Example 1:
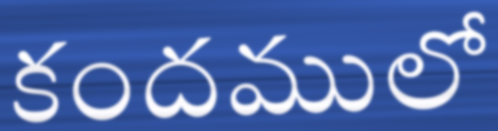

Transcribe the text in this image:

కందములో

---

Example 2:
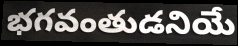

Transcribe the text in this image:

భగవంతుడనియే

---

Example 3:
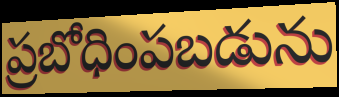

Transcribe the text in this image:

ప్రబోధింపబడును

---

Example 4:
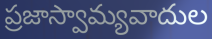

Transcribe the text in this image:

ప్రజాస్వామ్యవాదుల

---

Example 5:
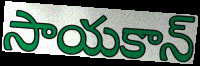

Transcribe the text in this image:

సాయకాన్